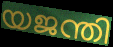
യജന്തി